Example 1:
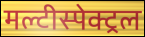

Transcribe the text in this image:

मल्टीस्पेक्ट्रल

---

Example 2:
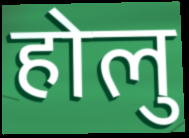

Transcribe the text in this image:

होलु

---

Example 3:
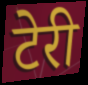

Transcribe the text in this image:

टेरी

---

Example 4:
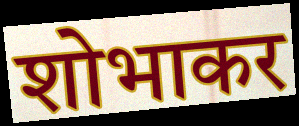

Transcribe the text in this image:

शोभाकर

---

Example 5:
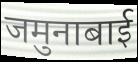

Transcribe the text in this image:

जमुनाबाई